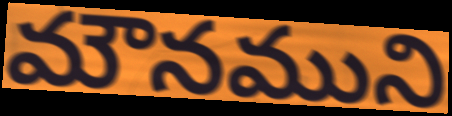
మౌనముని